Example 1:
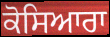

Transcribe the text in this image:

ਕੋਸਿਆਰਾ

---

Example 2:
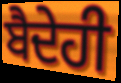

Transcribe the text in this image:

ਬੈਦੇਹੀ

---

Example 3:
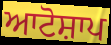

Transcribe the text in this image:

ਆਟੋਸ਼ਾਪ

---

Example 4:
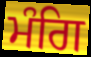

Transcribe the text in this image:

ਮੰਗਿ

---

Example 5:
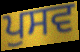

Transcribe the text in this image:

ਪੁਸਵ